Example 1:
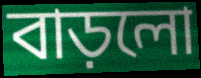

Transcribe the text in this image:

বাড়লো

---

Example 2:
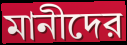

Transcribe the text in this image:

মানীদের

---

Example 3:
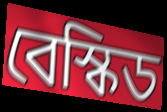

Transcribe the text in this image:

বেস্কিড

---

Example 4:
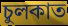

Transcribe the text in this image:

চুলকাত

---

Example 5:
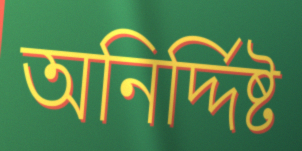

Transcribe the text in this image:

অনির্দ্দিষ্ট